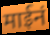
माईनं